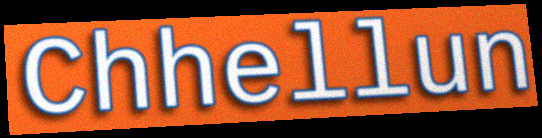
Chhellun